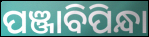
ପଞ୍ଜାବିପିନ୍ଧା